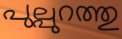
പുല്പുറത്തു